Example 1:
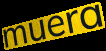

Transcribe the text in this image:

muera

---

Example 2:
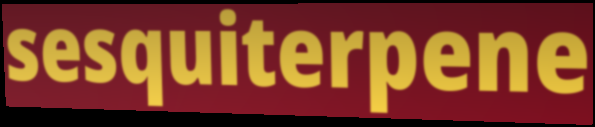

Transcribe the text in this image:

sesquiterpene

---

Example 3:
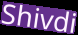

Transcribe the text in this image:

Shivdi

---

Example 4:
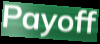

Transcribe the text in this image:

Payoff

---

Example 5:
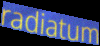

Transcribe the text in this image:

radiatum